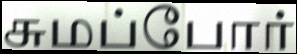
சுமப்போர்